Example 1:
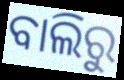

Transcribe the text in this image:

ବାଲିରୁ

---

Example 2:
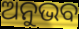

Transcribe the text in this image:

ଅନୁଭବ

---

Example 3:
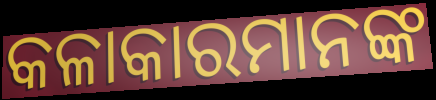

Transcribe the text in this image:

କଳାକାରମାନଙ୍କ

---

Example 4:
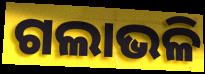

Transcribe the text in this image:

ଗଲାଭଳି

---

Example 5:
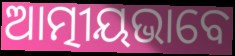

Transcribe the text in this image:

ଆତ୍ମୀୟଭାବେ